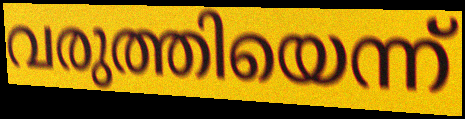
വരുത്തിയെന്ന്